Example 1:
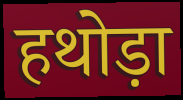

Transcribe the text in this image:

हथोड़ा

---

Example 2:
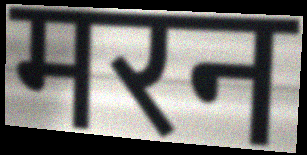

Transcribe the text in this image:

मरन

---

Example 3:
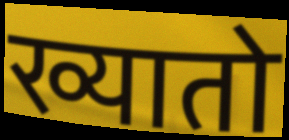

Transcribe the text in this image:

ख्यातो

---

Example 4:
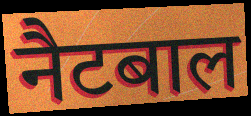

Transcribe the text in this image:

नैटबाल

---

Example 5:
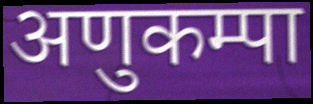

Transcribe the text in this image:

अणुकम्पा